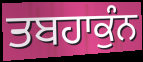
ਤਬਹਾਕੁੰਨ